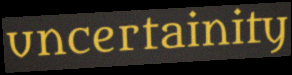
uncertainity